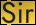
Sir